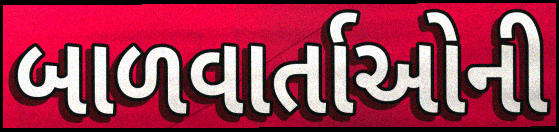
બાળવાર્તાઓની